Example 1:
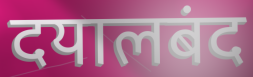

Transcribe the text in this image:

दयालबंद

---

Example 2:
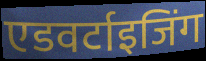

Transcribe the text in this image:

एडवर्टाइजिंग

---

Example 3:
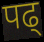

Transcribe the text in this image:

पढ्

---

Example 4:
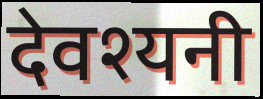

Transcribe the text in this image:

देवश्यनी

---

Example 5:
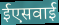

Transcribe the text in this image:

ईएसवाई